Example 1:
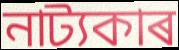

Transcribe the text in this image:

নাট্যকাৰ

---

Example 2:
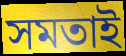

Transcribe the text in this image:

সমতাই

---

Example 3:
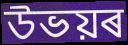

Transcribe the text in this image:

উভয়ৰ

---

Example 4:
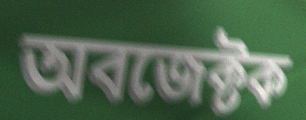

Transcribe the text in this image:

অবজেক্টক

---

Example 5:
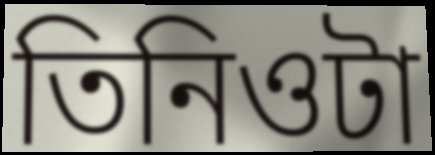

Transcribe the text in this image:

তিনিওটা